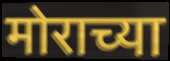
मोराच्या